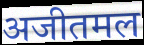
अजीतमल